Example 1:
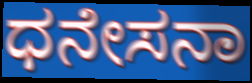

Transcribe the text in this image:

ಧನೇಸನಾ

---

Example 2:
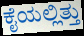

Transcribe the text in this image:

ಕೈಯಲ್ಲಿತ್ತು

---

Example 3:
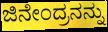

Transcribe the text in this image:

ಜಿನೇಂದ್ರನನ್ನು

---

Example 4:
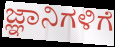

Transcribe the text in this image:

ಜ್ಞಾನಿಗಳಿಗೆ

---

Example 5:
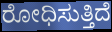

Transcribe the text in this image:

ರೋಧಿಸುತ್ತಿದೆ